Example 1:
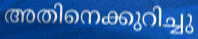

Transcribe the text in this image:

അതിനെക്കുറിച്ചു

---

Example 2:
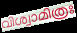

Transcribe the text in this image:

വിശ്വാമിത്രഃ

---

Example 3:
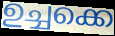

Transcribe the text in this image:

ഉച്ചക്കെ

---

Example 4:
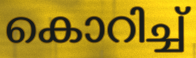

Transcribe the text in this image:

കൊറിച്ച്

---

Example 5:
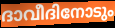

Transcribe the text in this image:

ദാവീദിനോടും